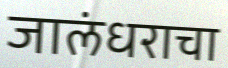
जालंधराचा